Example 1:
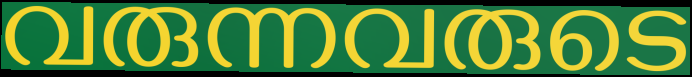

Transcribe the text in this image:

വരുന്നവരുടെ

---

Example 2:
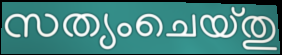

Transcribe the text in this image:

സത്യംചെയ്തു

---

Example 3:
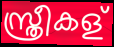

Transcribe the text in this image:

സ്ത്രീകള്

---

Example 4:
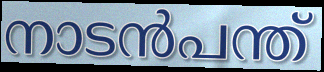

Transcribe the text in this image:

നാടൻപന്ത്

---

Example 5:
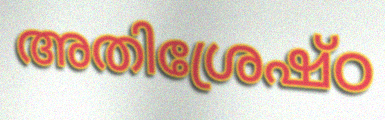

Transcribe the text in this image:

അതിശ്രേഷ്ഠ